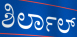
ಶಿರ್ಲಾಲ್